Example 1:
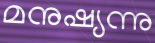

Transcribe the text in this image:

മനുഷ്യന്നു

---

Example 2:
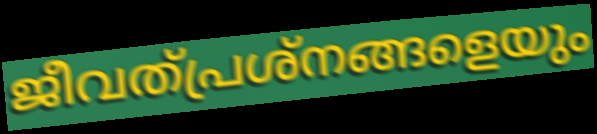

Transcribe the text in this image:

ജീവത്പ്രശ്നങ്ങളെയും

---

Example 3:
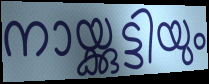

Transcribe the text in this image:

നായ്ക്കുട്ടിയും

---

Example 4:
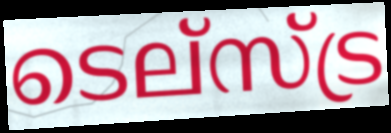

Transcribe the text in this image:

ടെല്സ്ട്ര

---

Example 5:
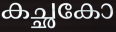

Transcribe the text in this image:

കച്ഛകോ